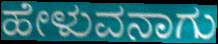
ಹೇಳುವನಾಗು